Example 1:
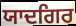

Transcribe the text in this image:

ਯਾਦਗਿਰ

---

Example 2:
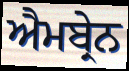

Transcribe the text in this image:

ਐਮਬ੍ਰੇਨ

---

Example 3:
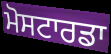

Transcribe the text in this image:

ਮੋਸਟਾਰਡਾ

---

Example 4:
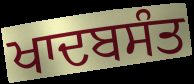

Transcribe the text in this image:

ਖਾਦਬਸੰਤ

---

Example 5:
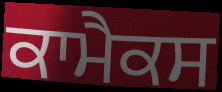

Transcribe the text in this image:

ਕਾਮੈਕਸ